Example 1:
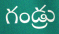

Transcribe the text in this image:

గండ్రు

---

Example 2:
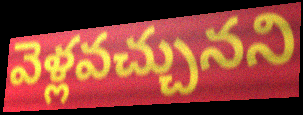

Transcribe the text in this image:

వెళ్లవచ్చునని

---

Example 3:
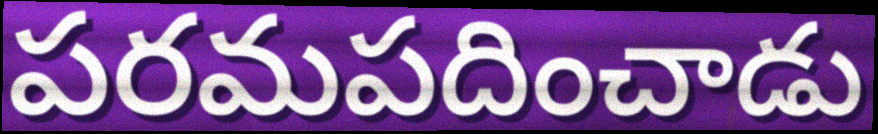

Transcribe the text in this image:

పరమపదించాడు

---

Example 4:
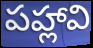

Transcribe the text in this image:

పహ్లావి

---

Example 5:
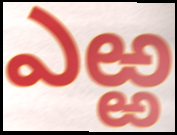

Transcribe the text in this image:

ఎఱ్ఱ